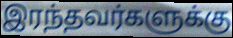
இரந்தவர்களுக்கு